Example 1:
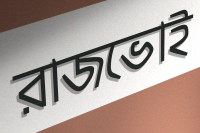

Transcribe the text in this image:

রাজভোই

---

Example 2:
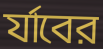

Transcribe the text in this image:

র্যাবের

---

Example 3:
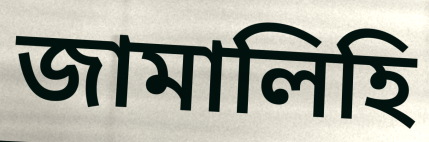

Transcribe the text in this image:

জামালিহি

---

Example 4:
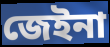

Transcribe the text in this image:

জেইনা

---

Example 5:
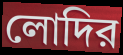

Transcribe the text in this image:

লোদির